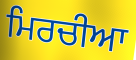
ਮਿਰਚੀਆ